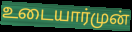
உடையார்முன்